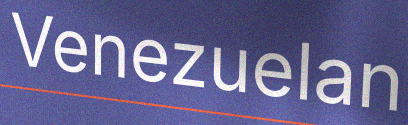
Venezuelan